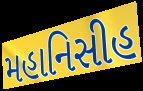
મહાનિસીહ